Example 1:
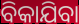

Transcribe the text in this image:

ବିକାଯିବା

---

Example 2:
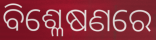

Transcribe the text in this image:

ବିଶ୍ଳେଷଣରେ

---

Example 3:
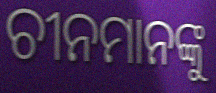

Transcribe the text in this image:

ଚୀନମାନଙ୍କୁ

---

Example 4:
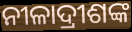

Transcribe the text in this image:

ନୀଳାଦ୍ରୀଶଙ୍କ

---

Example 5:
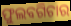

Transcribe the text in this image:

ଫୁଲବଗିଚାର